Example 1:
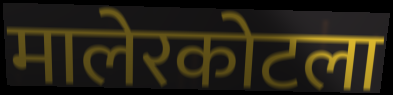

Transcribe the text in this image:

मालेरकोटला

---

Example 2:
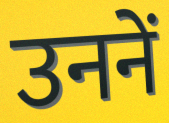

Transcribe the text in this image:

उननें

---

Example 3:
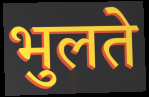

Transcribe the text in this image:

भुलते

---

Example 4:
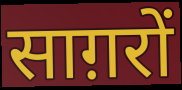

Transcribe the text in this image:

साग़रों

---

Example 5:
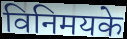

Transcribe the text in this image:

विनिमयके